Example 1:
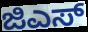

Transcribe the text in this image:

ಜಿಎಸ್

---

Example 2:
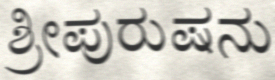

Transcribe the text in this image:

ಶ್ರೀಪುರುಷನು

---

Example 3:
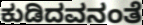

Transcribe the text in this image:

ಕುಡಿದವನಂತೆ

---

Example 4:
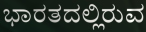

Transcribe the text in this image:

ಭಾರತದಲ್ಲಿರುವ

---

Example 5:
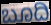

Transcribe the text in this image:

ಬೂದಿ